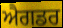
ਐਗਡਰ